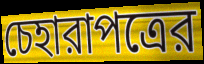
চেহারাপত্রের